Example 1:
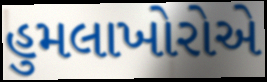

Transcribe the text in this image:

હુમલાખોરોએ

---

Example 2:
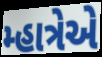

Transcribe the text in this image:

મ્હાત્રેએ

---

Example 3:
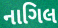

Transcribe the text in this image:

નાગિલ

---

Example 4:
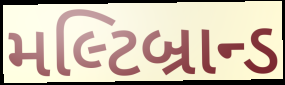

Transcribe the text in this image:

મલ્ટિબ્રાન્ડ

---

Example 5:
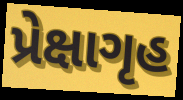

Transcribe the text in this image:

પ્રેક્ષાગૃહ